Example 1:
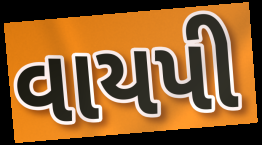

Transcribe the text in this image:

વાયપી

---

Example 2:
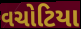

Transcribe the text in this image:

વચોટિયા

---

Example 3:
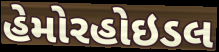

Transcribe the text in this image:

હેમોરહોઇડલ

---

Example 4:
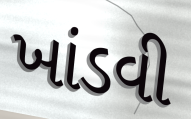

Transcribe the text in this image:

ખાંડવી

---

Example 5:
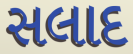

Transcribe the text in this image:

સલાદ